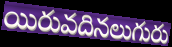
యిరువదినలుగురు